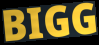
BIGG